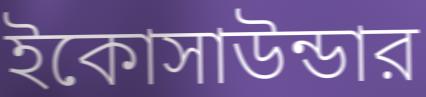
ইকোসাউন্ডার